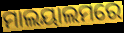
ମାଲୟାଲମରେ